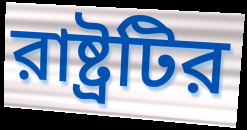
রাষ্ট্রটির